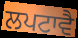
ਲਪਟਾਵੈ